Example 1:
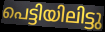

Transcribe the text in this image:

പെട്ടിയിലിട്ടു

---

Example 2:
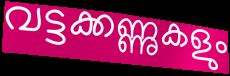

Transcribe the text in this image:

വട്ടക്കണ്ണുകളും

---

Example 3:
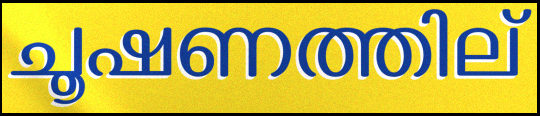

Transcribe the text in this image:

ചൂഷണത്തില്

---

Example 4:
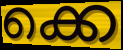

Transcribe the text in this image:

ക്കെ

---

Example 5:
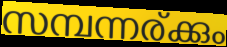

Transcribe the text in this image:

സമ്പന്നര്ക്കും